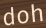
doh